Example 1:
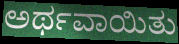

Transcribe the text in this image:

ಅರ್ಥವಾಯಿತು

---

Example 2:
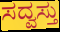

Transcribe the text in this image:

ಸದ್ವಸ್ತು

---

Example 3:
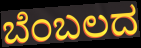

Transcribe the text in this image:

ಬೆಂಬಲದ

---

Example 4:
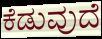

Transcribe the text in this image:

ಕೆಡುವುದೆ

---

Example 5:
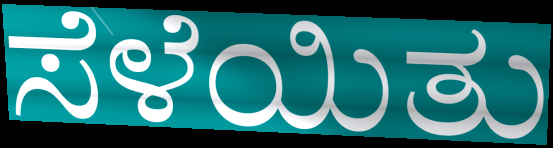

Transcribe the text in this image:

ಸೆಳೆಯಿತು